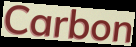
Carbon